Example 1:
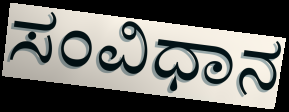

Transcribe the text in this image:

ಸಂವಿಧಾನ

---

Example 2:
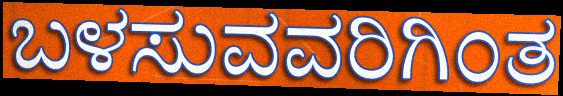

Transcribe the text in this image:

ಬಳಸುವವರಿಗಿಂತ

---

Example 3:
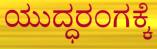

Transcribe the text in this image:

ಯುದ್ಧರಂಗಕ್ಕೆ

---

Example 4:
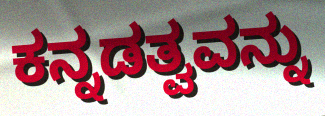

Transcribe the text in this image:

ಕನ್ನಡತ್ವವನ್ನು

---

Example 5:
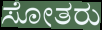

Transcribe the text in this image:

ಸೋತರು